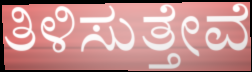
ತಿಳಿಸುತ್ತೇವೆ